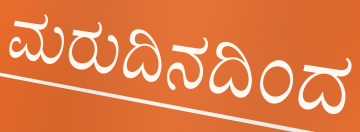
ಮರುದಿನದಿಂದ